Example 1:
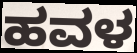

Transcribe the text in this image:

ಹವಳ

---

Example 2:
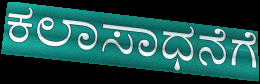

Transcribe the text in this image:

ಕಲಾಸಾಧನೆಗೆ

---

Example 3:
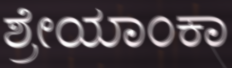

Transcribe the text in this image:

ಶ್ರೇಯಾಂಕಾ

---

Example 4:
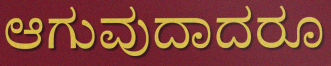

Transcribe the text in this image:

ಆಗುವುದಾದರೂ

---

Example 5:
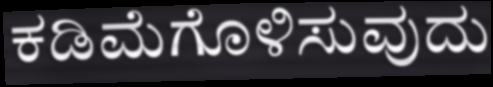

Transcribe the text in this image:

ಕಡಿಮೆಗೊಳಿಸುವುದು